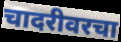
चादरीवरचा